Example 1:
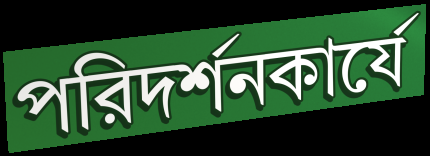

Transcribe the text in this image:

পরিদর্শনকার্যে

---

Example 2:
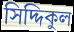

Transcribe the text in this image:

সিদ্দিকুল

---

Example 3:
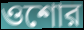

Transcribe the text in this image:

ওশোর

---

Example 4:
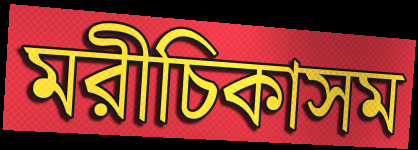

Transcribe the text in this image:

মরীচিকাসম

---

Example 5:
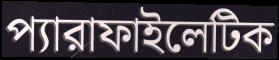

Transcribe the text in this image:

প্যারাফাইলেটিক